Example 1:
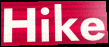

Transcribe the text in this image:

Hike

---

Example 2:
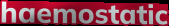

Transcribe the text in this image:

haemostatic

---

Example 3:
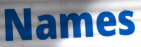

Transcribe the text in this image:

Names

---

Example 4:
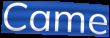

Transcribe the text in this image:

Came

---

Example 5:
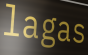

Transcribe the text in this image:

lagas